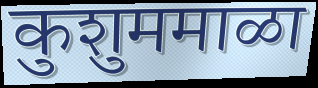
कुशुममाळा